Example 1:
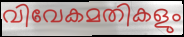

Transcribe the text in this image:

വിവേകമതികളും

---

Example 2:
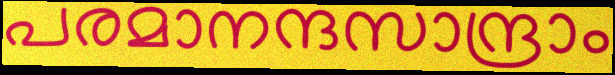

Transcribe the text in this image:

പരമാനന്ദസാന്ദ്രാം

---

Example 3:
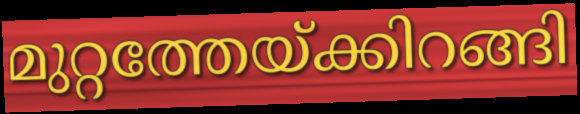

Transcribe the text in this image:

മുറ്റത്തേയ്ക്കിറങ്ങി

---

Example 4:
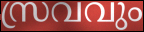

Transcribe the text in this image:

സ്രവവും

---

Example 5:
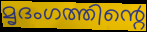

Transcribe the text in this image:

മൃദംഗത്തിന്റെ